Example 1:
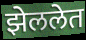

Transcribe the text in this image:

झेललेत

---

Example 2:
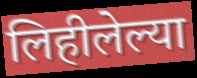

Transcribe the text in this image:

लिहीलेल्या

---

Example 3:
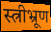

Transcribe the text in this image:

स्त्रीभ्रूण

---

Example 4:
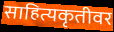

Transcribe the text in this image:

साहित्यकृतीवर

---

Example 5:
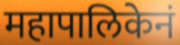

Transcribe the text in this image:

महापालिकेनं